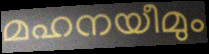
മഹനയീമും